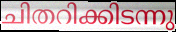
ചിതറിക്കിടന്നു